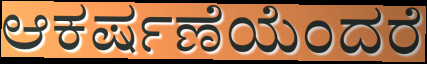
ಆಕರ್ಷಣೆಯೆಂದರೆ